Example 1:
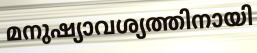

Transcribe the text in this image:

മനുഷ്യാവശ്യത്തിനായി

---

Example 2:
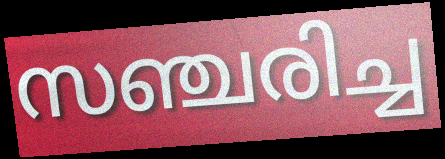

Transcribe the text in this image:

സഞ്ചരിച്ച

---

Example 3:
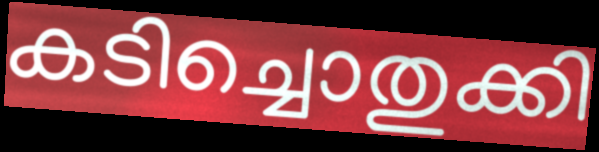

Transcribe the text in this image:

കടിച്ചൊതുക്കി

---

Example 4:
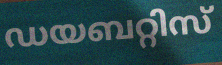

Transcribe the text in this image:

ഡയബറ്റിസ്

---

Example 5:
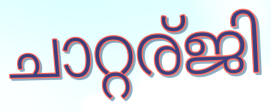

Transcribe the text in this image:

ചാറ്റര്ജി